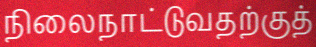
நிலைநாட்டுவதற்குத்